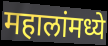
महालांमध्ये